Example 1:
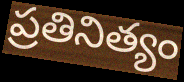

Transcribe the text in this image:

ప్రతినిత్యం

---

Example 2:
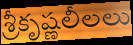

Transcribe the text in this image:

శ్రీకృష్ణలీలలు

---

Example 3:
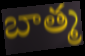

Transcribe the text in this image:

బాత్మ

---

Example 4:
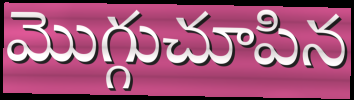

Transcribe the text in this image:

మొగ్గుచూపిన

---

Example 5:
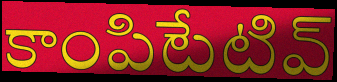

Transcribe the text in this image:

కాంపిటేటివ్